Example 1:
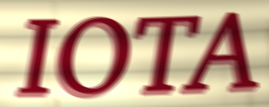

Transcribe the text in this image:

IOTA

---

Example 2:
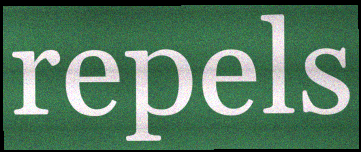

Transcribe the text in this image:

repels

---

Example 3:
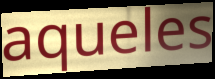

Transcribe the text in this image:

aqueles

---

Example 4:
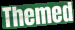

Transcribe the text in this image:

Themed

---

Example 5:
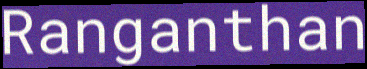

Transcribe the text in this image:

Ranganthan